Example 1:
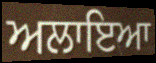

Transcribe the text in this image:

ਅਲਾਇਆ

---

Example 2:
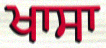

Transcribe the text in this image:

ਖਾਸਾ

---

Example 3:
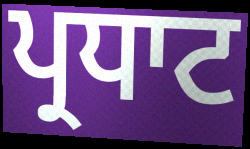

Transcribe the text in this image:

ਪ੍ਰਧਾਟ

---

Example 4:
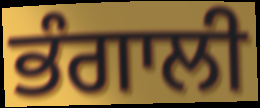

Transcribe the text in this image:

ਭੰਗਾਲੀ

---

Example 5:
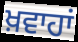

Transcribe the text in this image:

ਖ਼ਵਾਹਾਂ